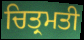
ਚਿਤ੍ਰਮਤੀ